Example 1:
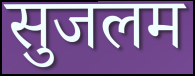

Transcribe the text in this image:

सुजलम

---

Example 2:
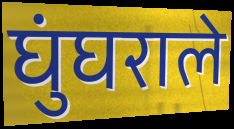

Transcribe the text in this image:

घुंघराले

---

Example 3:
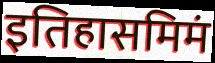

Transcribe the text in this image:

इतिहासमिमं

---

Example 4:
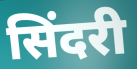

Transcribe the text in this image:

सिंदरी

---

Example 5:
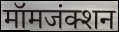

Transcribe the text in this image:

मॉमजंक्शन